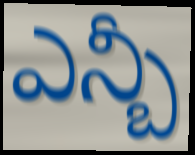
ఎన్బీ